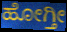
ಹೋಗ್ತೀ